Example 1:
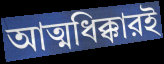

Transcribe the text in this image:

আত্মধিক্কারই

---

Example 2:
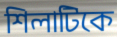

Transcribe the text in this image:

শিলাটিকে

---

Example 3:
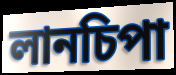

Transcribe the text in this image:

লানচিপা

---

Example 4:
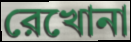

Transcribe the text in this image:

রেখোনা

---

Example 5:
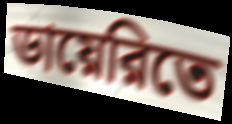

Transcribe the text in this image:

ডায়েরিতে